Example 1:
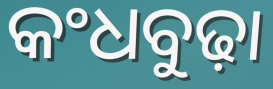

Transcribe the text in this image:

କଂଧବୁଢ଼ା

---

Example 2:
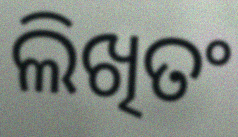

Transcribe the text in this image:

ଲିଖିତଂ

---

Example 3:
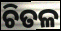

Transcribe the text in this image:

ଚିତଳ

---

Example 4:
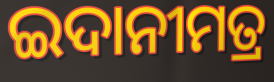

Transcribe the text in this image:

ଇଦାନୀମତ୍ର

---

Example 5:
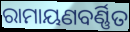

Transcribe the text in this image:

ରାମାୟଣବର୍ଣ୍ଣିତ